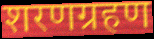
शरणग्रहण